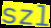
szl